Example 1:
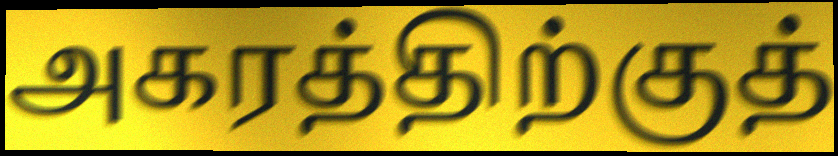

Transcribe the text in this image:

அகரத்திற்குத்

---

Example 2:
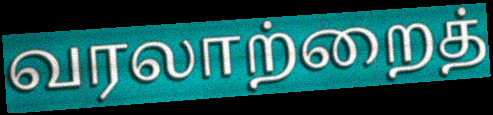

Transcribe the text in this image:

வரலாற்றைத்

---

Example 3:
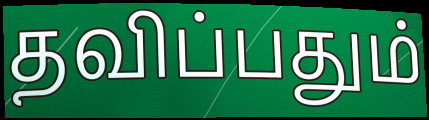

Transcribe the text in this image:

தவிப்பதும்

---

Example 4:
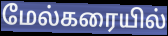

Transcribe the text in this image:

மேல்கரையில்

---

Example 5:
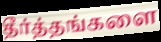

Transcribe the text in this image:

தீர்த்தங்களை